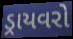
ડ્રાયવરો